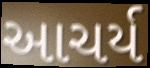
આચર્ય